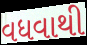
વધવાથી